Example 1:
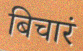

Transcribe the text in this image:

बिचारं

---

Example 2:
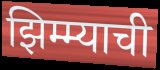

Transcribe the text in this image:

झिम्म्याची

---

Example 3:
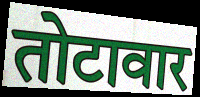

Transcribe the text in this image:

तोटावार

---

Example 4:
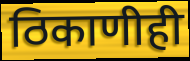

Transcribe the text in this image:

ठिकाणीही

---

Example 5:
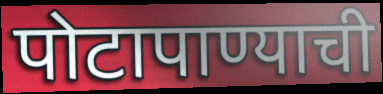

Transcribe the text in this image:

पोटापाण्याची